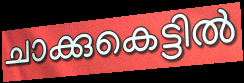
ചാക്കുകെട്ടിൽ